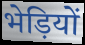
भेड़ियों